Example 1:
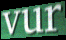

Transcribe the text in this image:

vur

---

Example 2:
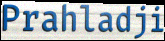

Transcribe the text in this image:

Prahladji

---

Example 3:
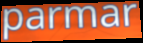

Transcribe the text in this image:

parmar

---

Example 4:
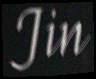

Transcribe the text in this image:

Jin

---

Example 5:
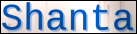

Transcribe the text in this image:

Shanta